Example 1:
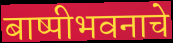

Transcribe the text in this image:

बाष्पीभवनाचे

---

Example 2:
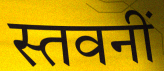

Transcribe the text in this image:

स्तवनीं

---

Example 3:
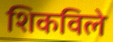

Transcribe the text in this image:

शिकविले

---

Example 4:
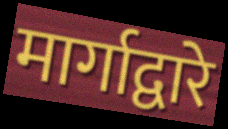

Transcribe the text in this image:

मार्गाद्वारे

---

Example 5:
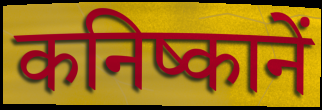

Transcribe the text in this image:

कनिष्कानें